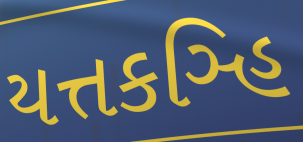
યત્તકઞ્હિ